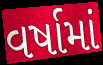
વર્ષામાં